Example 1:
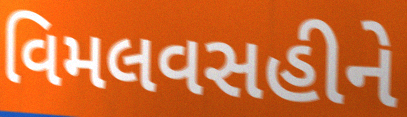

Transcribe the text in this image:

વિમલવસહીને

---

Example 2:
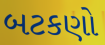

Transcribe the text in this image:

બટકણો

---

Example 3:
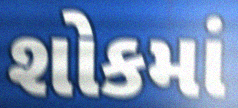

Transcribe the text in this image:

શોકમાં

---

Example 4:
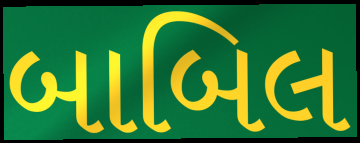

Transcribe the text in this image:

બાબિલ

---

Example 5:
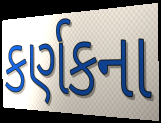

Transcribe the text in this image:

કર્ણકના